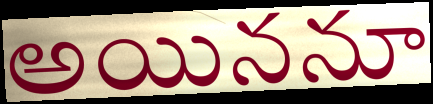
అయిననూ